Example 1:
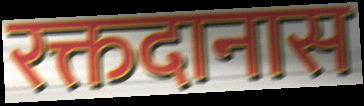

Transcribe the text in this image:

रक्तदानास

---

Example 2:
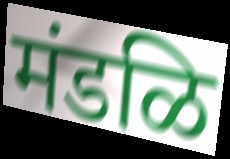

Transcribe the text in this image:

मंडळि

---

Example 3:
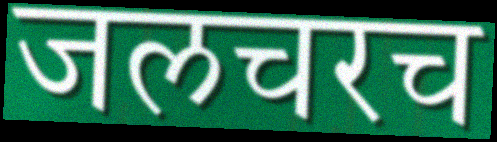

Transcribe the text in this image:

जलचरच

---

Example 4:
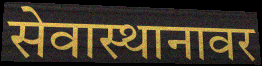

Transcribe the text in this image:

सेवास्थानावर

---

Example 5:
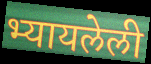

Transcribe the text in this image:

भ्यायलेली